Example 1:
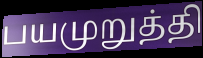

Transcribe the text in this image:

பயமுறுத்தி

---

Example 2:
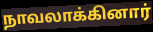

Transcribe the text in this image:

நாவலாக்கினார்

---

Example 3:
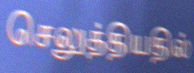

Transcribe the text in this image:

செலுத்தியதில்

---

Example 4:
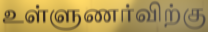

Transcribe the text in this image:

உள்ளுணர்விற்கு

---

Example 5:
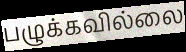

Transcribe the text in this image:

பழுக்கவில்லை